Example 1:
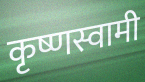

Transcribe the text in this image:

कृष्णस्वामी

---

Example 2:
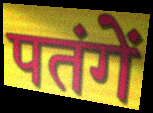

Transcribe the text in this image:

पतंगें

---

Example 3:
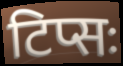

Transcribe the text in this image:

टिप्सः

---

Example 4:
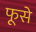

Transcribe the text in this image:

फूसे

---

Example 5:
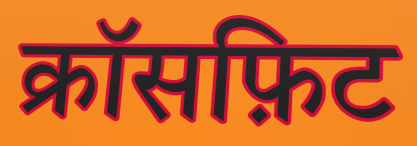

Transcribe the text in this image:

क्रॉसफ़िट